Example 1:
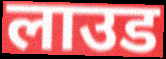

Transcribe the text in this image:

लाउड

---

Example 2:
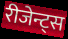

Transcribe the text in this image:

रीजेन्ट्स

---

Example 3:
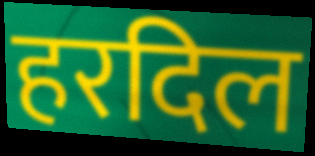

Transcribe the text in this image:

हरदिल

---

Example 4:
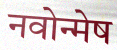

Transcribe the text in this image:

नवोन्‍मेष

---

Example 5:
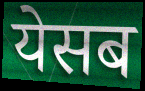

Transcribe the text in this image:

येसब